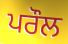
ਪਰੌਲ